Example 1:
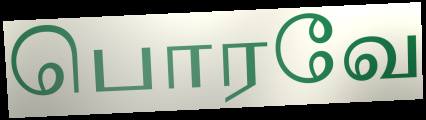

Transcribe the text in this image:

பொரவே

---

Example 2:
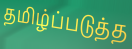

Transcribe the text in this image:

தமிழ்ப்படுத்த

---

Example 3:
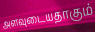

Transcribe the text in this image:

அளவுடையதாகும்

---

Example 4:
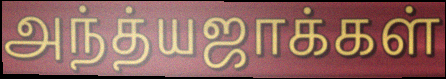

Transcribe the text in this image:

அந்த்யஜாக்கள்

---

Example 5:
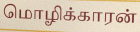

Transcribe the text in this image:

மொழிக்காரன்